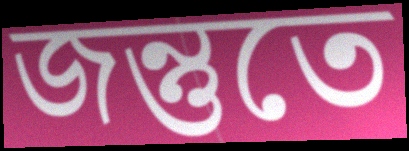
জন্তুতে